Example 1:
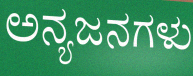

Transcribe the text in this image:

ಅನ್ಯಜನಗಳು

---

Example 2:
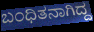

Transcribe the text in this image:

ಬಂಧಿತನಾಗಿದ್ದ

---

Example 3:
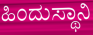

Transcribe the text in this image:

ಹಿಂದುಸ್ಥಾನಿ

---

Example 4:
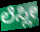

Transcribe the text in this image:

ಲೆಸ್ಲೀ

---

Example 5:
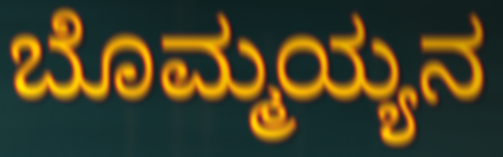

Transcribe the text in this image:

ಬೊಮ್ಮಯ್ಯನ